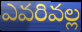
ఎవరివల్ల